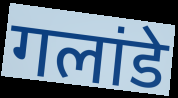
गलांडे